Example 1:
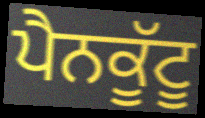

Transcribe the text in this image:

ਪੈਨਕੂੱਟੂ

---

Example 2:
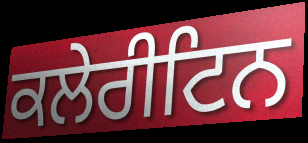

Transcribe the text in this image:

ਕਲੇਰੀਟਿਨ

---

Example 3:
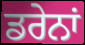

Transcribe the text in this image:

ਡਰੇਨਾਂ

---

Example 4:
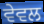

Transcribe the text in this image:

ਵੇਵਲ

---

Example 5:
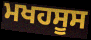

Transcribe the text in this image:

ਮਖਹਸੂਸ